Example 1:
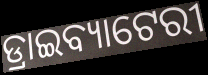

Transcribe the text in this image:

ଡ୍ରାଇବ୍ୟାଟେରୀ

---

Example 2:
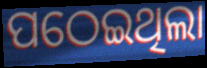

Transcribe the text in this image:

ପଠେଇଥିଲା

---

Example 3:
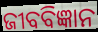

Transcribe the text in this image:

ଜୀବବିଜ୍ଞାନ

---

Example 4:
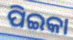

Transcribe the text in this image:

ପିଇକା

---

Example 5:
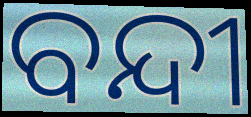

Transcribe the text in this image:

ବନ୍ଦୀ